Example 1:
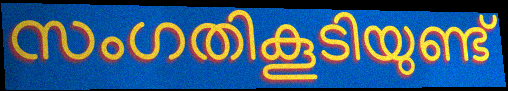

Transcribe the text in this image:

സംഗതികൂടിയുണ്ട്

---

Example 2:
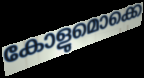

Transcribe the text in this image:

കോളുമൊക്കെ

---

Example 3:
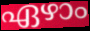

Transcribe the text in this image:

ഏഴാം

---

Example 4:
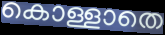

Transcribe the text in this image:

കൊള്ളാതെ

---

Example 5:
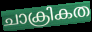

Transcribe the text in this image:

ചാക്രികത